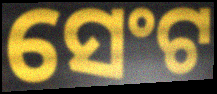
ସେଂଟ